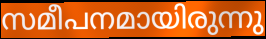
സമീപനമായിരുന്നു